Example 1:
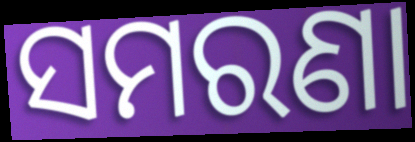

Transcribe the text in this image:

ସମରଣା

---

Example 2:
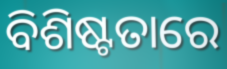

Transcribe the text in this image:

ବିଶିଷ୍ଟତାରେ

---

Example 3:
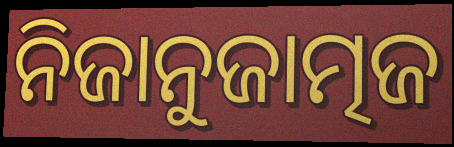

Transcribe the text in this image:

ନିଜାନୁଜାତ୍ମଜ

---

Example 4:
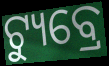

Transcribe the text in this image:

ଟ୍ୟୁବ୍ରେ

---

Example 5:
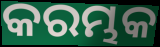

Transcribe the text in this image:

କରମ୍ଭକ